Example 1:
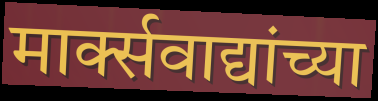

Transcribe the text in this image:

मार्क्सवाद्यांच्या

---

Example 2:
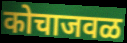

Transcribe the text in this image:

कोचाजवळ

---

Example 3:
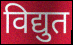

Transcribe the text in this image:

विद्युत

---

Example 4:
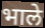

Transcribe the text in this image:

भाले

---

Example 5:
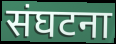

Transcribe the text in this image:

संघटना